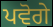
ਪਵੋਗੇ